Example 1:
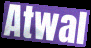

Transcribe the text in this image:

Atwal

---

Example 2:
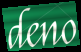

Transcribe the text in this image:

deno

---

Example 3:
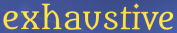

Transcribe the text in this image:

exhaustive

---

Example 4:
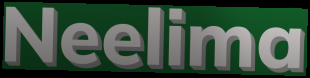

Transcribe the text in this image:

Neelima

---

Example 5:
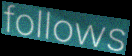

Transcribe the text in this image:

follows